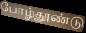
போழ்தூண்டு